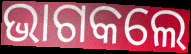
ଭାଗକଲେ